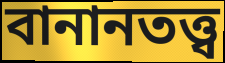
বানানতত্ত্ব